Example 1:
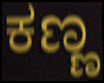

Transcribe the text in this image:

ಕಣ್ಣ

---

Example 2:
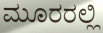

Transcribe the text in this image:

ಮೂರರಲ್ಲಿ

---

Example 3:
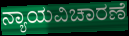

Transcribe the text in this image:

ನ್ಯಾಯವಿಚಾರಣೆ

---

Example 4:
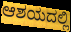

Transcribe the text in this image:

ಆಶಯದಲ್ಲಿ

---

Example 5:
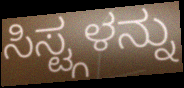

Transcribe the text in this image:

ಸಿಸ್ಟ್ಗಳನ್ನು